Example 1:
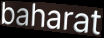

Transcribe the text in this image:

baharat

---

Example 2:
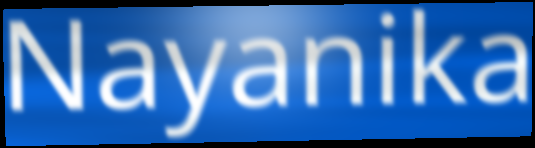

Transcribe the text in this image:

Nayanika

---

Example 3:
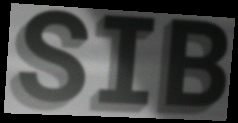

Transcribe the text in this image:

SIB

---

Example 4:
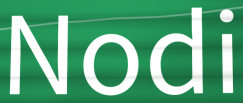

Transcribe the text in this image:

Nodi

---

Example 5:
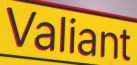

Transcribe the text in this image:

Valiant